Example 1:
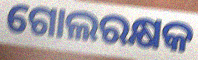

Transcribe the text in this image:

ଗୋଲରକ୍ଷକ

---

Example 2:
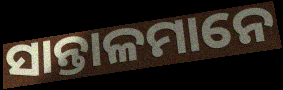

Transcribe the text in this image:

ସାନ୍ତାଳମାନେ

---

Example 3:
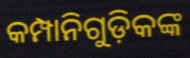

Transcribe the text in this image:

କମ୍ପାନିଗୁଡ଼ିକଙ୍କ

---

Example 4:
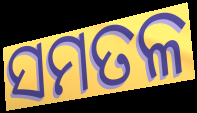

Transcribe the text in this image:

ସମତଳ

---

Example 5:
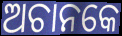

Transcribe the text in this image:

ଅଚାନକେ